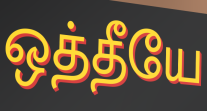
ஒத்தீயே